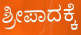
ಶ್ರೀಪಾದಕ್ಕೆ